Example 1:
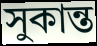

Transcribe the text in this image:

সুকান্ত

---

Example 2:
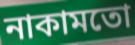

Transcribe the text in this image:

নাকামতো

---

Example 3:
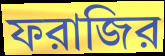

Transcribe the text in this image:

ফরাজির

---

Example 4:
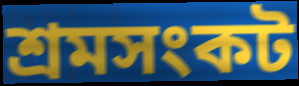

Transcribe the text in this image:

শ্রমসংকট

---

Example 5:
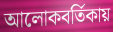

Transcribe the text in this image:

আলোকবর্তিকায়